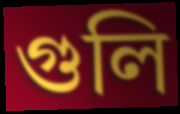
গুলি